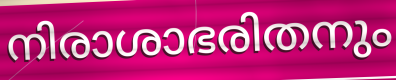
നിരാശാഭരിതനും